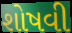
શોષવી